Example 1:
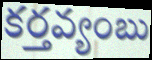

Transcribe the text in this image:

కర్తవ్యంబు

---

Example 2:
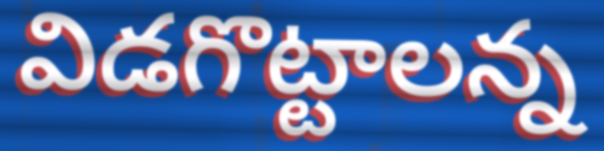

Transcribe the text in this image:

విడగొట్టాలన్న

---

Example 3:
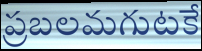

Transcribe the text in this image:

ప్రబలమగుటకే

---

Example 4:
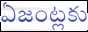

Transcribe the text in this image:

ఏజంట్లకు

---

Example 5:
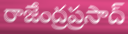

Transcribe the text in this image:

రాజేంద్రప్రసాద్